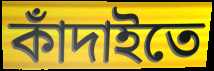
কাঁদাইতে